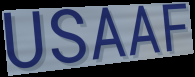
USAAF